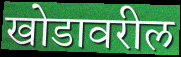
खोडावरील